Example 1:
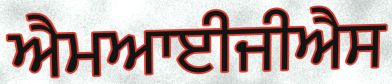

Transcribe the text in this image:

ਐਮਆਈਜੀਐਸ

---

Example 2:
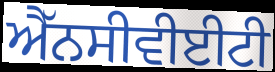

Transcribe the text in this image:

ਐੱਨਸੀਵੀਈਟੀ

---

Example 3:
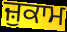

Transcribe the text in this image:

ਜ਼ੁਕਾਮ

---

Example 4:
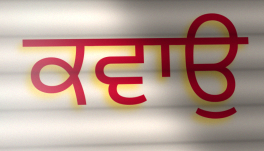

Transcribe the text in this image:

ਕਵਾਉ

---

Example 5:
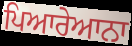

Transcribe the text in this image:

ਪਿਆਰੇਆਨਾ